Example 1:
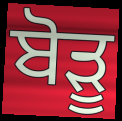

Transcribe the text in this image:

ਬੋੜੂ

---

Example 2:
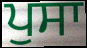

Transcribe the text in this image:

ਪੁਸਾ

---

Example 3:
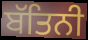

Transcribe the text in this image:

ਬੱਤਿਨੀ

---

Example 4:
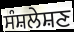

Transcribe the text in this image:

ਸੰਸ਼ਲੇਸ਼ਣ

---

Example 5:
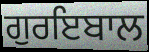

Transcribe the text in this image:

ਗੁਰਇਬਾਲ